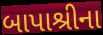
બાપાશ્રીના